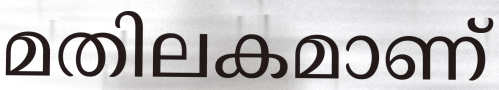
മതിലകമാണ്